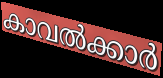
കാവൽക്കാർ